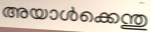
അയാൾക്കെന്തു